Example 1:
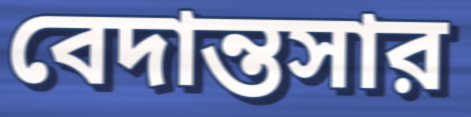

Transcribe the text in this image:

বেদান্তসার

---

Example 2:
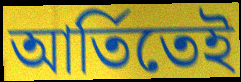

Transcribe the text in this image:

আর্তিতেই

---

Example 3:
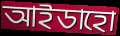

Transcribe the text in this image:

আইডাহো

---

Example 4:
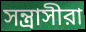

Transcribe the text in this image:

সন্ত্রাসীরা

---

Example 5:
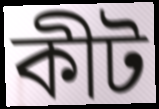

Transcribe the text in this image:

কীট